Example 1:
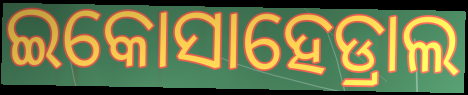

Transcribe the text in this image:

ଇକୋସାହେଡ୍ରାଲ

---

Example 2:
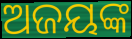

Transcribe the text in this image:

ଅଜୟଙ୍କ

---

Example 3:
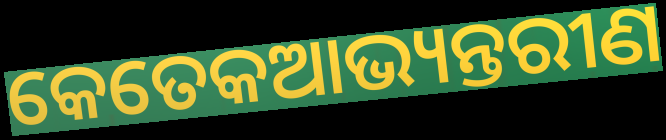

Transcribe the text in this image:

କେତେକଆଭ୍ୟନ୍ତରୀଣ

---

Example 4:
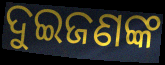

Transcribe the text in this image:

ଦୁଇଜଣଙ୍କ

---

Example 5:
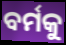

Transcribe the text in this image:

ବର୍ମକୁ